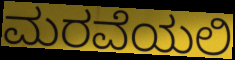
ಮರವೆಯಲಿ